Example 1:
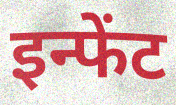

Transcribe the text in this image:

इन्फेंट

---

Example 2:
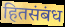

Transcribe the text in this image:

हितसंबंध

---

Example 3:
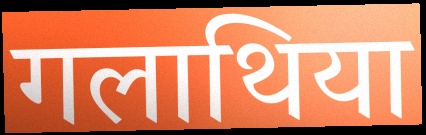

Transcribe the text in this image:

गलाथिया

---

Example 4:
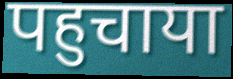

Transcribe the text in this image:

पहुचाया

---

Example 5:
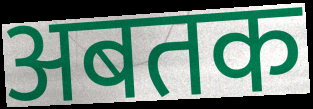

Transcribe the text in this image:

अबतक